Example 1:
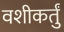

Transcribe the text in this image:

वशीकर्तुं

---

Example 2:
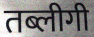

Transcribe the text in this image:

तब्‍लीगी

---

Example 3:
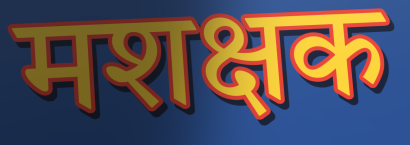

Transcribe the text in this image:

मशक्षक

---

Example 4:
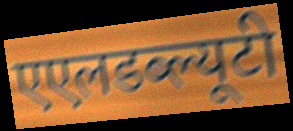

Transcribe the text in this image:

एएलडब्ल्यूटी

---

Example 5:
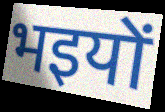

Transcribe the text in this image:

भइयों